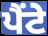
ਪੈਂਟੇ